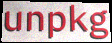
unpkg